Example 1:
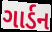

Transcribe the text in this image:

ગાર્ડન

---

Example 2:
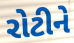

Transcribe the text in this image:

રોટીને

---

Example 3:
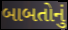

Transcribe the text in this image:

બાબતોનું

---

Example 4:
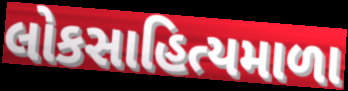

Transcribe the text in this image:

લોકસાહિત્યમાળા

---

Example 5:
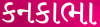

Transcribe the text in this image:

કનકાભા